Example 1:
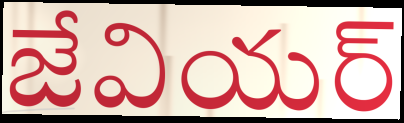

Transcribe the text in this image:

జేవియర్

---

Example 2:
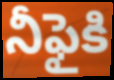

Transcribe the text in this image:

నీఫైకి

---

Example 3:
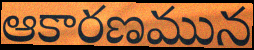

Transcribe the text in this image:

ఆకారణమున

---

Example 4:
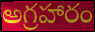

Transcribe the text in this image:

అగ్రహారం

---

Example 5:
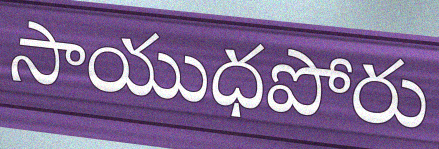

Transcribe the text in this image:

సాయుధపోరు